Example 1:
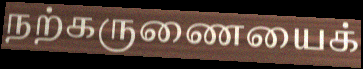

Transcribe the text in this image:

நற்கருணையைக்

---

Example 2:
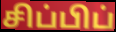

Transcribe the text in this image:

சிப்பிப்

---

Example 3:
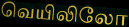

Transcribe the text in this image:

வெயிலிலோ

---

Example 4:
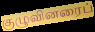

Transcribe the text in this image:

குழுவினரைப்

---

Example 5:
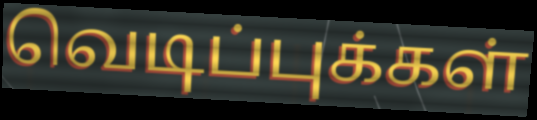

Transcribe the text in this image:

வெடிப்புக்கள்